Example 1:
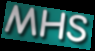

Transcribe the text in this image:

MHS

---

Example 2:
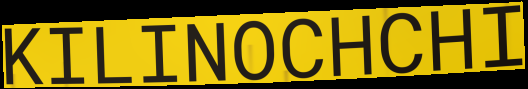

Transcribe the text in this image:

KILINOCHCHI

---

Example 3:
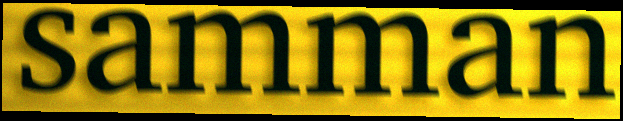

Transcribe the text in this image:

samman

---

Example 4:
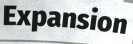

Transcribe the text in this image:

Expansion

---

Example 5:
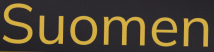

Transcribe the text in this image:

Suomen